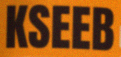
KSEEB